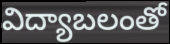
విద్యాబలంతో